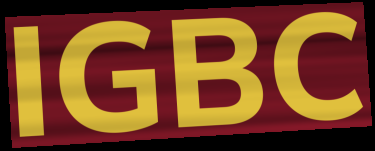
IGBC